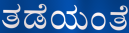
ತಡೆಯಂತೆ